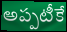
అప్పటీకే